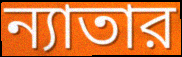
ন্যাতার